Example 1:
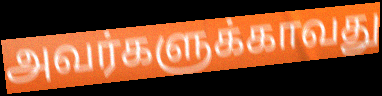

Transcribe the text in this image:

அவர்களுக்காவது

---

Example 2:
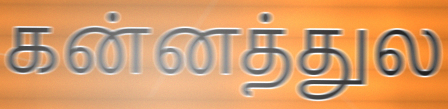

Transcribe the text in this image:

கன்னத்துல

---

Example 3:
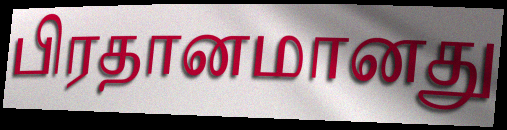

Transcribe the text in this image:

பிரதானமானது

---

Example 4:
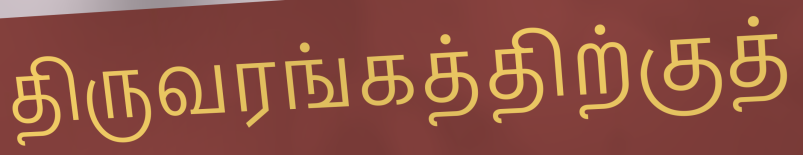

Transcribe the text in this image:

திருவரங்கத்திற்குத்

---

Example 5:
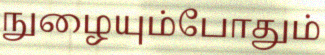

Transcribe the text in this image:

நுழையும்போதும்